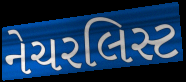
નેચરલિસ્ટ